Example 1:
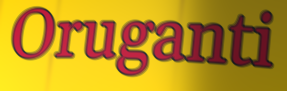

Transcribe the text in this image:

Oruganti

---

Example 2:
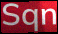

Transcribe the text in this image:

Sqn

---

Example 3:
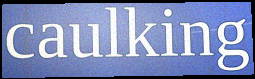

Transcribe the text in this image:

caulking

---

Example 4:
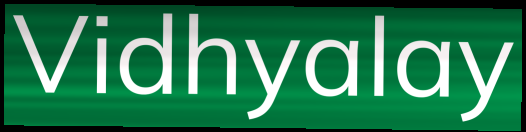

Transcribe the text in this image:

Vidhyalay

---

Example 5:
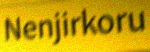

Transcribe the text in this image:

Nenjirkoru